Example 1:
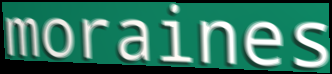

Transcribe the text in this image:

moraines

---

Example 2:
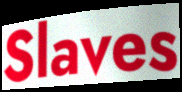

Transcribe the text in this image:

Slaves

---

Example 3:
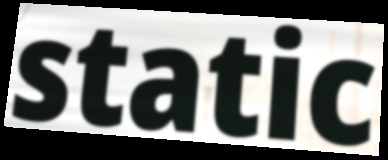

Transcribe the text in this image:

static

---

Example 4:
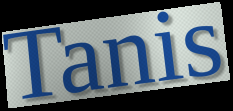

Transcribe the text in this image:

Tanis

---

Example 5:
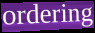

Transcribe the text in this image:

ordering